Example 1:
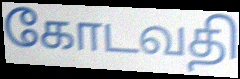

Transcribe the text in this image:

கோடவதி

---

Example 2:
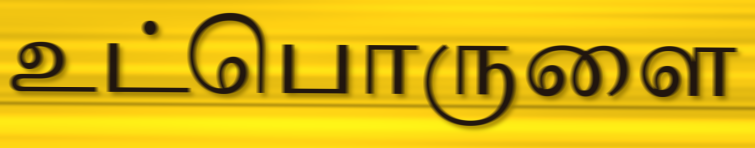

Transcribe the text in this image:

உட்பொருளை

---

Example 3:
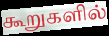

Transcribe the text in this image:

கூறுகளில்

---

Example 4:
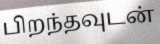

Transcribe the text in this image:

பிறந்தவுடன்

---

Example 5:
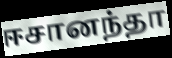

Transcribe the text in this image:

ஈசானந்தா